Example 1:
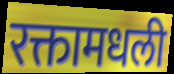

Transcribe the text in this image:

रक्तामधली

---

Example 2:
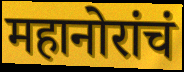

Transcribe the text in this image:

महानोरांचं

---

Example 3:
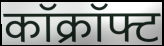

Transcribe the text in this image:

कॉक्रॉफ्ट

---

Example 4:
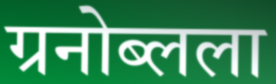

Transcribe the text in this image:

ग्रनोब्लला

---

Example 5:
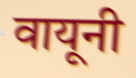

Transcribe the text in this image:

वायूनी